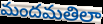
మందమతిలా